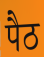
पैठ